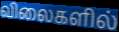
விலைகளில்